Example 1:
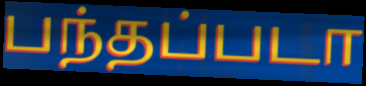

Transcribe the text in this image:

பந்தப்படா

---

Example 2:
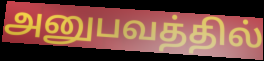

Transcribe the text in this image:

அனுபவத்தில்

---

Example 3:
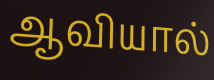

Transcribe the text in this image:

ஆவியால்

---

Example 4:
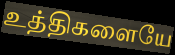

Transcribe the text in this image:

உத்திகளையே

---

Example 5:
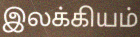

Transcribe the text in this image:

இலக்கியம்